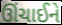
ઊંચાઈને